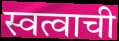
स्वत्वाची